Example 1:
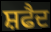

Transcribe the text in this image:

ਸ਼ਫੈਦ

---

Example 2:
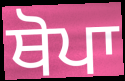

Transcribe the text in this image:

ਥੋਪਾ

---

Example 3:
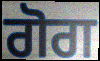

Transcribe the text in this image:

ਗੋਗ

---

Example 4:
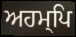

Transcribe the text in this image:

ਅਹਮ੍ਪਿ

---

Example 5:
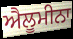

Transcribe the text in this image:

ਐਲੂਮੀਨਾ